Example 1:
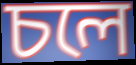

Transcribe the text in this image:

চলে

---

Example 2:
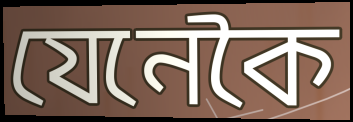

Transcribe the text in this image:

যেনেকৈ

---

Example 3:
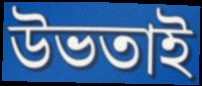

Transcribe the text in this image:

উভতাই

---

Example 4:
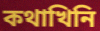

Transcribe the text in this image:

কথাখিনি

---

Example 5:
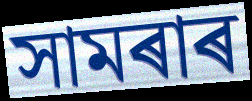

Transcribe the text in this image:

সামৰাৰ